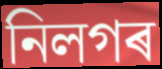
নিলগৰ